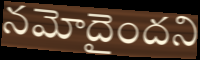
నమోదైందని